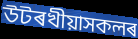
উটৰখীয়াসকলৰ